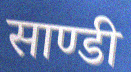
साण्डी